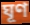
ঘূণ